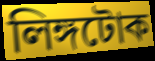
লিঙ্গটোক